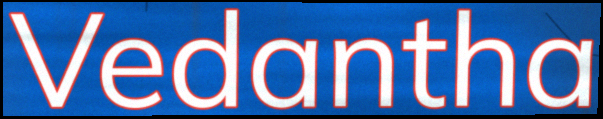
Vedantha